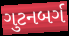
ગુટનબર્ગ